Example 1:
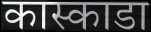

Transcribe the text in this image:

कास्काडा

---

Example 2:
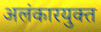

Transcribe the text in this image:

अलंकारयुक्त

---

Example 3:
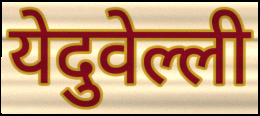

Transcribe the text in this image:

येदुवेल्ली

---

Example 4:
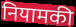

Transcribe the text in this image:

नियामकी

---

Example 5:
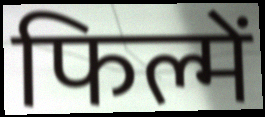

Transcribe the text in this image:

फिल्‍में